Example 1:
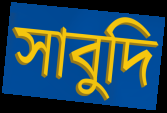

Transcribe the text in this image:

সাবুদি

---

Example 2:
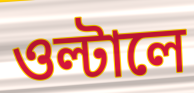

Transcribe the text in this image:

ওল্টালে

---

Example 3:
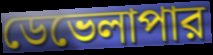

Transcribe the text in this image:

ডেভেলাপার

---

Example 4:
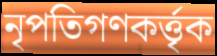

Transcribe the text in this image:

নৃপতিগণকর্ত্তৃক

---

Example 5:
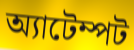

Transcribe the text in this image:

অ্যাটেম্পট